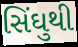
સિંઘુથી